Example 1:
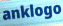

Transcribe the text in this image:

anklogo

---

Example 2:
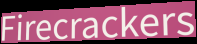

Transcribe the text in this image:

Firecrackers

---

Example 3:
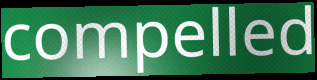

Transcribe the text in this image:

compelled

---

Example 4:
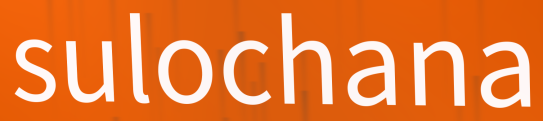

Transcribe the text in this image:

sulochana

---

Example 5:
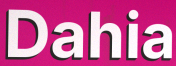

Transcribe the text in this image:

Dahia